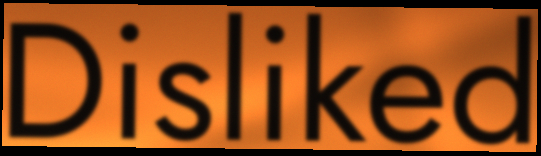
Disliked